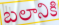
బలానికి